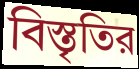
বিস্তৃতির